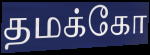
தமக்கோ